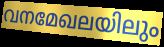
വനമേഖലയിലും